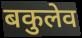
बकुलेव